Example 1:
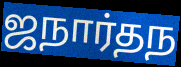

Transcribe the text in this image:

ஜநார்தந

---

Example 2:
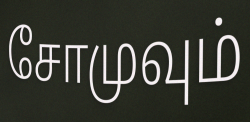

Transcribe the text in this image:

சோமுவும்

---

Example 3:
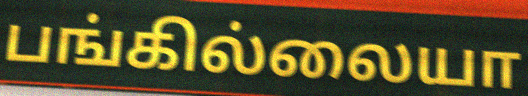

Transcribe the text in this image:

பங்கில்லையா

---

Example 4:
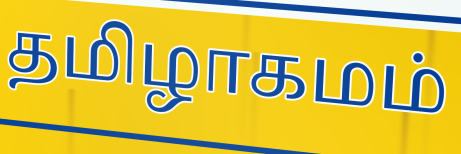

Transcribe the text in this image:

தமிழாகமம்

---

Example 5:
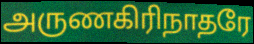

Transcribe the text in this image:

அருணகிரிநாதரே